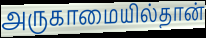
அருகாமையில்தான்